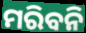
ମରିବନି